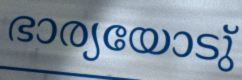
ഭാര്യയോടു്